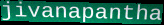
jivanapantha